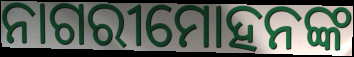
ନାଗରୀମୋହନଙ୍କ